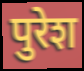
पुरेश